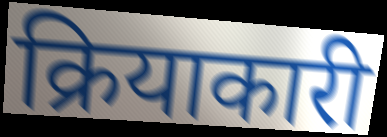
क्रियाकारी